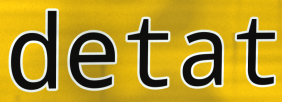
detat